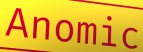
Anomic